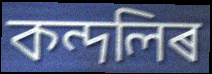
কন্দলিৰ